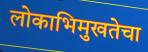
लोकाभिमुखतेचा